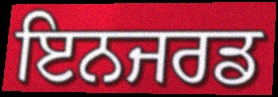
ਇਨਜਰਡ